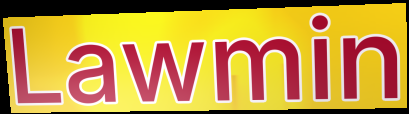
Lawmin